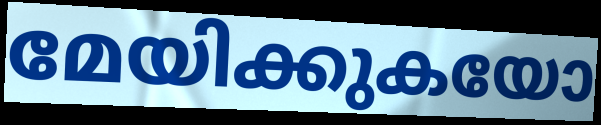
മേയിക്കുകയോ